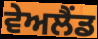
ਵੇਅਲੈਂਡ